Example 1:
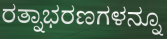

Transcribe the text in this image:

ರತ್ನಾಭರಣಗಳನ್ನೂ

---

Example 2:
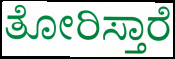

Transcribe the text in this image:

ತೋರಿಸ್ತಾರೆ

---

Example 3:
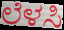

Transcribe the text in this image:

ಲೆಳಸಿ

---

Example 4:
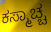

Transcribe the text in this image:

ಕಸ್ಮಾಚ್ಚ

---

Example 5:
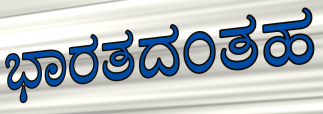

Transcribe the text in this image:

ಭಾರತದಂತಹ